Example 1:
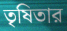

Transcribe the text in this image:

তৃষিতার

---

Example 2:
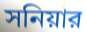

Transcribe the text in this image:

সনিয়ার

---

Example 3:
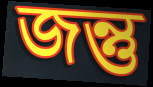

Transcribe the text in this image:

জন্তু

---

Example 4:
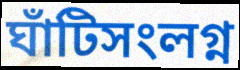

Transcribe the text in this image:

ঘাঁটিসংলগ্ন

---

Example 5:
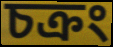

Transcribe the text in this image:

চক্রং